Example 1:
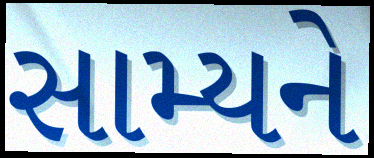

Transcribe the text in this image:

સામ્યને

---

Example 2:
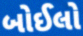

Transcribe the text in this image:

બોઈલો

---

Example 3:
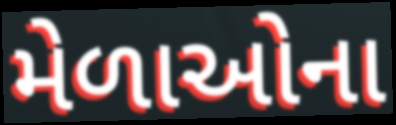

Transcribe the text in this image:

મેળાઓના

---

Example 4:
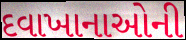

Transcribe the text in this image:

દવાખાનાઓની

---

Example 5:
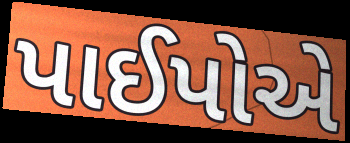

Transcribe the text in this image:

પાઈપોએ